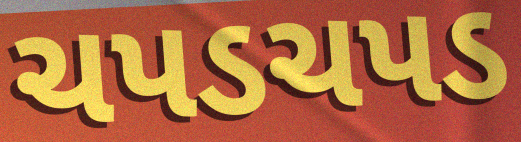
ચપડચપડ